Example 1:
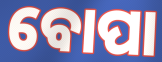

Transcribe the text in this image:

ବୋପା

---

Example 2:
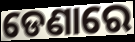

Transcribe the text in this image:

ଡେଣାରେ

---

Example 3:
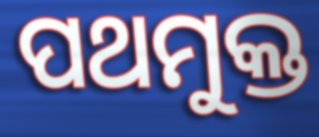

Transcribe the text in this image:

ପଥମୁକ୍ତ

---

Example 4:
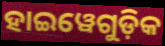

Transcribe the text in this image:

ହାଇୱେଗୁଡ଼ିକ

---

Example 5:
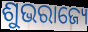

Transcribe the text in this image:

ଶୁଭରାଜ୍ୟେ